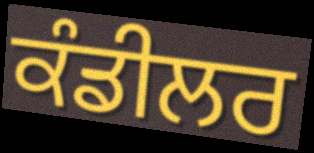
ਕੰਡੀਲਰ